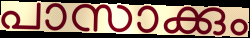
പാസാക്കും